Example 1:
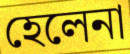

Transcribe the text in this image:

হেলেনা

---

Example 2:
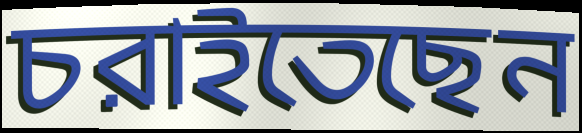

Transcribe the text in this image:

চরাইতেছেন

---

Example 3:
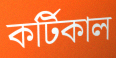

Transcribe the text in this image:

কর্টিকাল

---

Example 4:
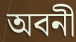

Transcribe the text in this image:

অবনী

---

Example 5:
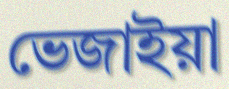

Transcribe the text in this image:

ভেজাইয়া